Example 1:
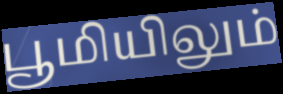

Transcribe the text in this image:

பூமியிலும்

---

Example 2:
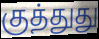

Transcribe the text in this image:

குத்துது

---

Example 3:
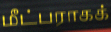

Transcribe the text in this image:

மீட்பராகக்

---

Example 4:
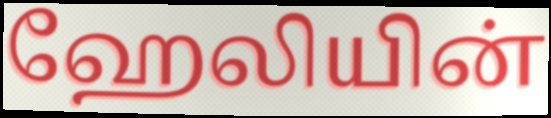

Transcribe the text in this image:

ஹேலியின்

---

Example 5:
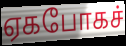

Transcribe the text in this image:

ஏகபோகச்